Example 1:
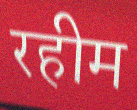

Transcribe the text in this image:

रहीम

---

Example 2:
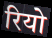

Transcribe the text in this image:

रियो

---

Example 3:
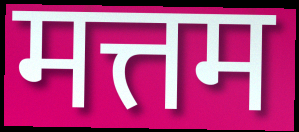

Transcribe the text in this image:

मत्तम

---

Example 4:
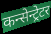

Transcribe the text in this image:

कन्सेन्ट्रेटर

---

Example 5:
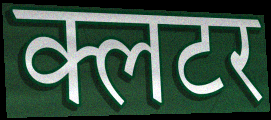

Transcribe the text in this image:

क्लटर